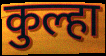
कुल्हा